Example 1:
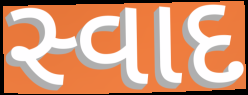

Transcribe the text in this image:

સ્વાદ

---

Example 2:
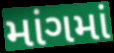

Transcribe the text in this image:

માંગમાં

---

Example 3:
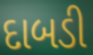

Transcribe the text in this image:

દાબડી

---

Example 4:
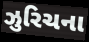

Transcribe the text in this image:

ઝુરિચના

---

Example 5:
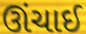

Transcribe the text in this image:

ઊંચાઈ